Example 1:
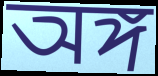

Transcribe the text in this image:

অঙ্গ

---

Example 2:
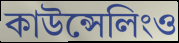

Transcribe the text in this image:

কাউন্সেলিংও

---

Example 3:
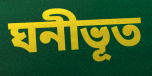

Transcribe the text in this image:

ঘনীভূত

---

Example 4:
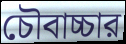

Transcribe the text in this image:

চৌবাচ্চার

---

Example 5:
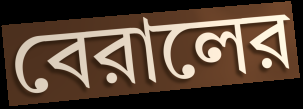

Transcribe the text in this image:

বেরালের